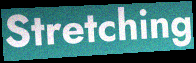
Stretching